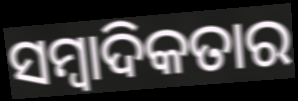
ସମ୍ୱାଦିକତାର